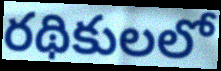
రథికులలో